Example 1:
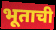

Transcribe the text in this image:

भूताची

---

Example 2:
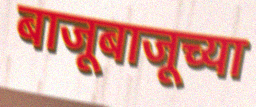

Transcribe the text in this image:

बाजूबाजूच्या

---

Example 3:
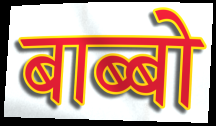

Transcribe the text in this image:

बाब्बो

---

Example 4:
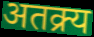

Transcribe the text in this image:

अतक्र्य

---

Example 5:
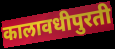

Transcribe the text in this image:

कालावधीपुरती